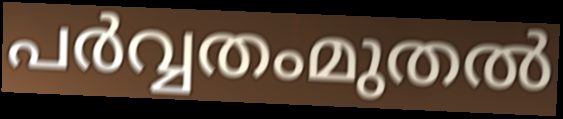
പർവ്വതംമുതൽ